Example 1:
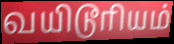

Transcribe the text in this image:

வயிடூரியம்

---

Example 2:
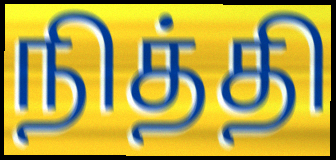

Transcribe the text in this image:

நித்தி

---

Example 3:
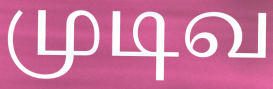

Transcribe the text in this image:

முடிவ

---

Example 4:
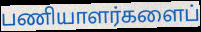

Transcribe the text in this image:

பணியாளர்களைப்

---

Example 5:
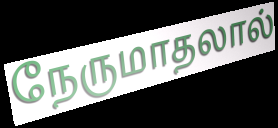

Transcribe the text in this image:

நேருமாதலால்